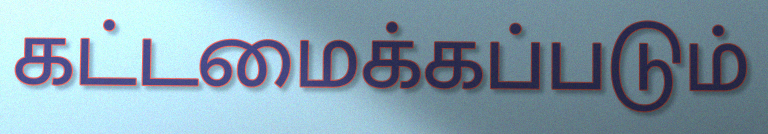
கட்டமைக்கப்படும்